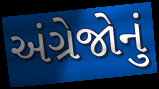
અંગ્રેજોનું